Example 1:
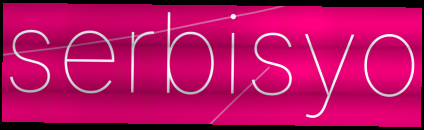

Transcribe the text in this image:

serbisyo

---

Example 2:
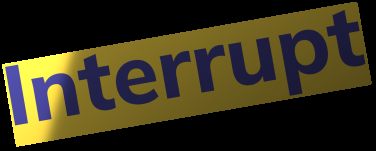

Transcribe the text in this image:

Interrupt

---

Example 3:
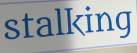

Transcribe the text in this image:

stalking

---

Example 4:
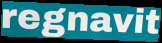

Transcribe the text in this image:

regnavit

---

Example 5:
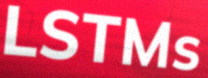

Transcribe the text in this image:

LSTMs